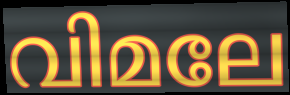
വിമലേ